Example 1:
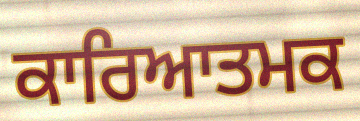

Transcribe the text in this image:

ਕਾਰਿਆਤਮਕ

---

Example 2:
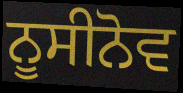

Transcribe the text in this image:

ਨੂਸੀਨੋਵ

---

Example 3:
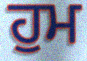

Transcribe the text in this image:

ਹੁਮ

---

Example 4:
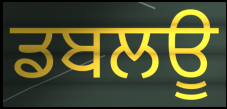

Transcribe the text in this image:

ਡਬਲਊ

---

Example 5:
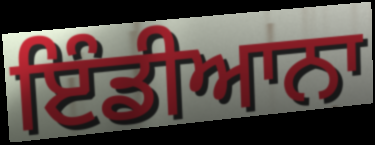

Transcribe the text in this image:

ਇੰਡੀਆਨਾ